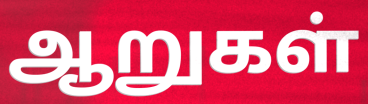
ஆறுகள்